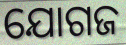
ଯୋଗଜ